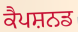
ਕੈਪਸ਼ਨਡ